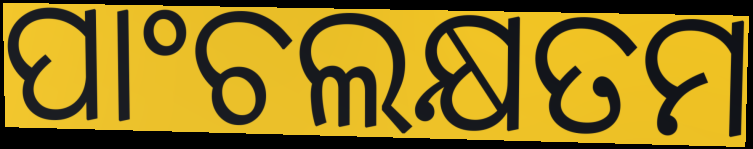
ପାଂଚଲକ୍ଷତମ